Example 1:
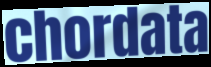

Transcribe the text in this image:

chordata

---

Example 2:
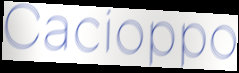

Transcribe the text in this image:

Cacioppo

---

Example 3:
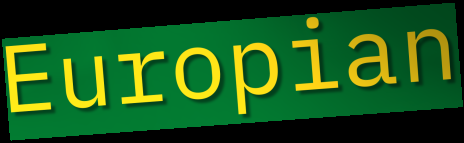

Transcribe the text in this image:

Europian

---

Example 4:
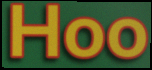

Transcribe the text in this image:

Hoo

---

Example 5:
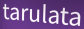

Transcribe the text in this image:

tarulata